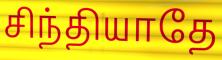
சிந்தியாதே